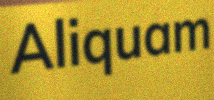
Aliquam